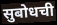
सुबोधची